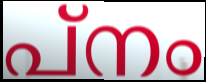
പ്നം